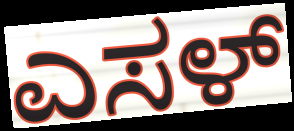
ಎಸಳ್